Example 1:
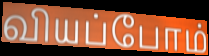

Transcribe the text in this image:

வியப்போம்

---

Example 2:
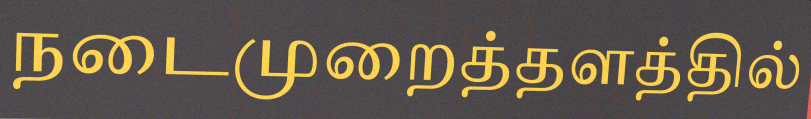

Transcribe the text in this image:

நடைமுறைத்தளத்தில்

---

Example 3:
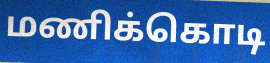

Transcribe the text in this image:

மணிக்கொடி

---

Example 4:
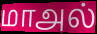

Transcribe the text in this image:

மாஅல்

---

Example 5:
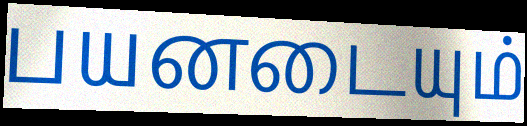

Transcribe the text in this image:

பயனடையும்